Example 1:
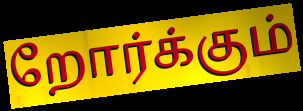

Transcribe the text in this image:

றோர்க்கும்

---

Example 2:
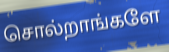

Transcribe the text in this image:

சொல்றாங்களே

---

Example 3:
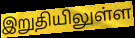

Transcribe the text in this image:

இறுதியிலுள்ள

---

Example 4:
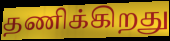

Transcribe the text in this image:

தணிக்கிறது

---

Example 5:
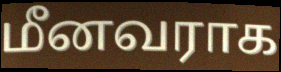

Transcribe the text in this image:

மீனவராக